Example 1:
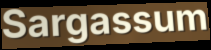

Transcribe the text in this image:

Sargassum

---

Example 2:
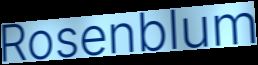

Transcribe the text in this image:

Rosenblum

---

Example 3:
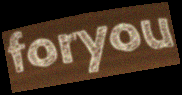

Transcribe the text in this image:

foryou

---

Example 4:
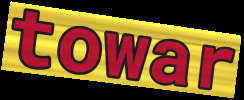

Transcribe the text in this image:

towar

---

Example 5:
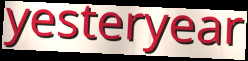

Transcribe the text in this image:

yesteryear